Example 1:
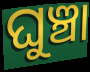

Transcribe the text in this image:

ଘୁଞ୍ଚା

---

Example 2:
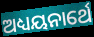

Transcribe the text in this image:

ଅଧ୍ୟୟନାର୍ଥେ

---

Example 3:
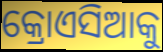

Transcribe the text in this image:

କ୍ରୋଏସିଆକୁ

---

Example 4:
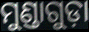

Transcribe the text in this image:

ମୁଣ୍ଡାଗୁଡ଼ା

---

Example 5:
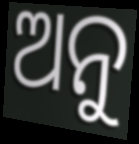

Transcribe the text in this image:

ଅନୁ